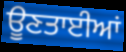
ਊਣਤਾਈਆਂ